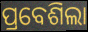
ପ୍ରବେଶିଲା